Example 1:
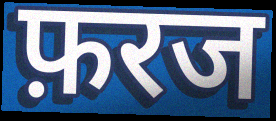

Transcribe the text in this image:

फ़रज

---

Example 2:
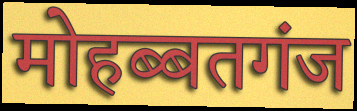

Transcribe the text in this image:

मोहब्बतगंज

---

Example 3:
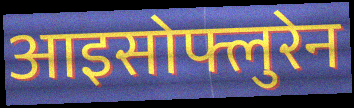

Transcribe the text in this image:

आइसोफ्लुरेन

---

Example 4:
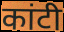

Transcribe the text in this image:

कांटी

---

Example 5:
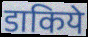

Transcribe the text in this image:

डाकिये